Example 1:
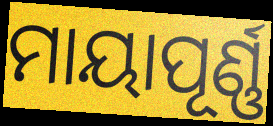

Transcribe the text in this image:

ମାୟାପୂର୍ଣ୍ଣ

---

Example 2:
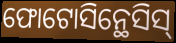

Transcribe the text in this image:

ଫୋଟୋସିନ୍ଥେସିସ୍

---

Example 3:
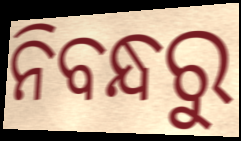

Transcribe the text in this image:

ନିବନ୍ଧରୁ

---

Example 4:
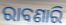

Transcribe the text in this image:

ରାବଣାରି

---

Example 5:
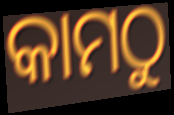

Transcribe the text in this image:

କାମଠୁ